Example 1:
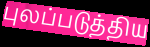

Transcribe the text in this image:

புலப்படுத்திய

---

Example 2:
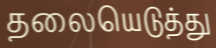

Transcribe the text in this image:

தலையெடுத்து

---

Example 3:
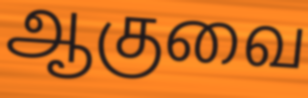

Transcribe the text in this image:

ஆகுவை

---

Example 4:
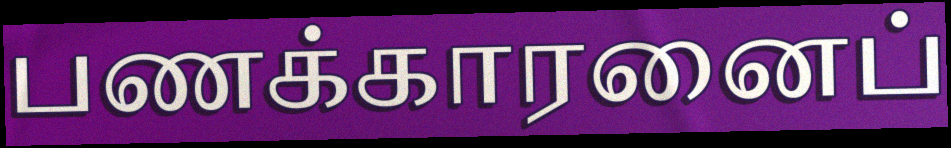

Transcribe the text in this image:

பணக்காரனைப்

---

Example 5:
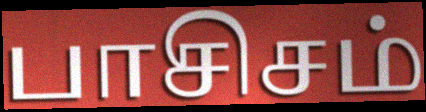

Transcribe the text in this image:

பாசிசம்